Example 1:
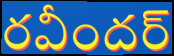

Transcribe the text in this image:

రవీందర్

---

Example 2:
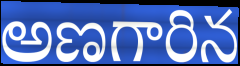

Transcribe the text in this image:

అణగారిన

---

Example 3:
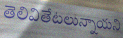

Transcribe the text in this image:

తెలివితేటలున్నాయని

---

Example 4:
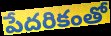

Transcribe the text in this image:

పేదరికంతో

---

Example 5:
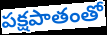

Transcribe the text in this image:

పక్షపాతంతో